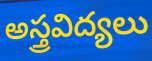
అస్త్రవిద్యలు